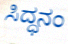
ಸಿದ್ಧನಂ